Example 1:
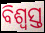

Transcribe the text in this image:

ବିଶ୍ବସ୍ତ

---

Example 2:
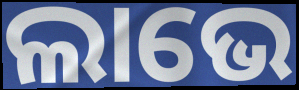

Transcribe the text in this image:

ଲାଭେ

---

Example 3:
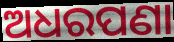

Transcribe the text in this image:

ଅଧରପଣା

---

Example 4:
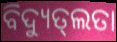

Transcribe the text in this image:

ବିଦ୍ୟୁତ୍‌ଲତା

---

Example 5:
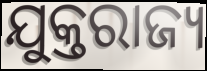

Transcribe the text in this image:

ଯୁକ୍ତରାଜ୍ୟ